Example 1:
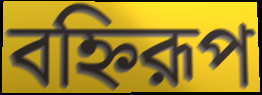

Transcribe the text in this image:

বহ্নিরূপ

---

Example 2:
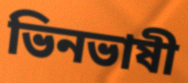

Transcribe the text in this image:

ভিনভাষী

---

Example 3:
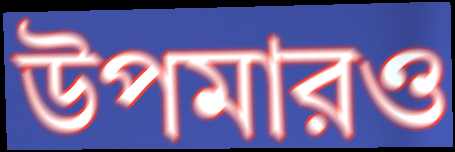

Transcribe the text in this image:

উপমারও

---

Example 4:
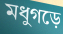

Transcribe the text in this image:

মধুগড়ে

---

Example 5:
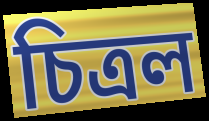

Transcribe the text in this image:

চিত্রল